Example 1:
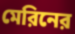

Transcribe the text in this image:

মেরিনের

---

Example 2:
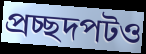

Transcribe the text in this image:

প্রচ্ছদপটও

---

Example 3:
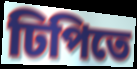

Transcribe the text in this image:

ঢিপিতে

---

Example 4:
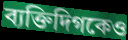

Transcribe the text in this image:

ব্যক্তিদিগকেও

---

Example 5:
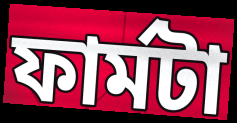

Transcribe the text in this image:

ফার্মটা